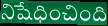
నిషేధించింది